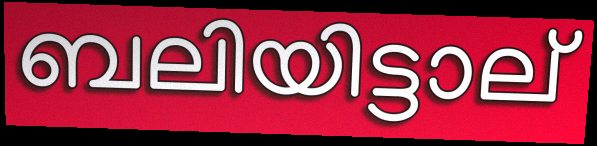
ബലിയിട്ടാല്